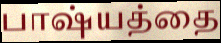
பாஷ்யத்தை